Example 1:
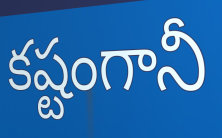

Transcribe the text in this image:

కష్టంగానీ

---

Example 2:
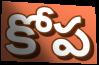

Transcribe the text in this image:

కోప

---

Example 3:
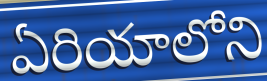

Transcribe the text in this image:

ఏరియాలోని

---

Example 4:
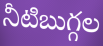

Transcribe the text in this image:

నీటిబుగ్గల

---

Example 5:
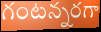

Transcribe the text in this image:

గంటన్నరగా